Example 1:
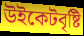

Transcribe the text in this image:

উইকেটবৃষ্টি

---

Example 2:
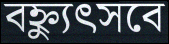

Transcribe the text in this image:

বহ্ন্যুৎসবে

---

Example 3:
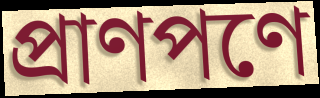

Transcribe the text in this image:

প্রাণপণে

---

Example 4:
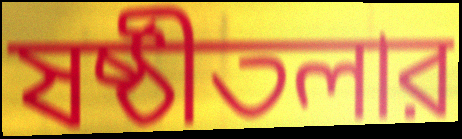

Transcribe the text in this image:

ষষ্ঠীতলার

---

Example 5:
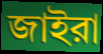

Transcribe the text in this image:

জাইরা